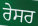
ਰੇਸਰ